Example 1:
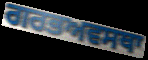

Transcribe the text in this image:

ਗਰਭਅਵਸਥਾ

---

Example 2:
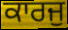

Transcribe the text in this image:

ਕਾਰਜੁ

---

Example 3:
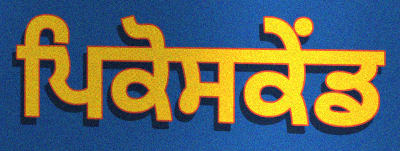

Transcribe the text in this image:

ਪਿਕੋਸਕੇਂਡ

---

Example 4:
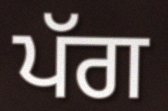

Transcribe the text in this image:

ਪੱਗ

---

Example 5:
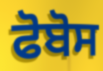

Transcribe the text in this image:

ਫੋਬੋਸ